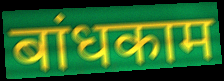
बांधकाम